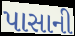
પાસાની